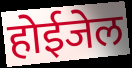
होईजेल